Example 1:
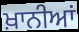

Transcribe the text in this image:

ਖ਼ਾਨੀਆਂ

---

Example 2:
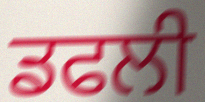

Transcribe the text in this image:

ਡਫਲੀ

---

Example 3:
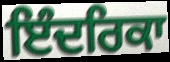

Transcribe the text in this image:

ਇੰਦਰਿਕਾ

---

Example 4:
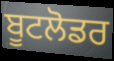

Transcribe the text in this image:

ਬੂਟਲੋਡਰ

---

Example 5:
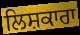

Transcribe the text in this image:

ਲਿਸ਼ਕਾਰਾ